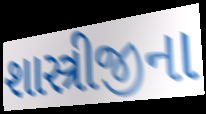
શાસ્ત્રીજીના